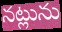
నట్లును